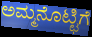
ಅಮ್ಮನೊಟ್ಟಿಗೆ